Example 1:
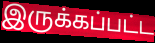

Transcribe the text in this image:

இருக்கப்பட்ட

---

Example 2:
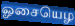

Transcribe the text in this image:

ஓசையெழ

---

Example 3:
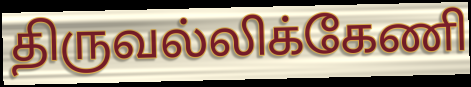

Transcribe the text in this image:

திருவல்லிக்கேணி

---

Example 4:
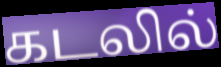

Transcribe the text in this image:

கடலில்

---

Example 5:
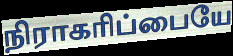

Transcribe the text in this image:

நிராகரிப்பையே